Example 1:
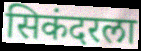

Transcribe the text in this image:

सिकंदरला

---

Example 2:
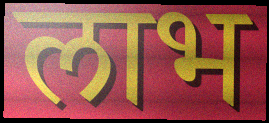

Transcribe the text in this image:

लाभ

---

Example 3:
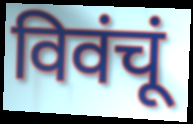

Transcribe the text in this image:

विवंचूं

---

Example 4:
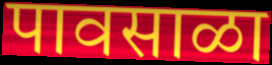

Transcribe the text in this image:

पावसाळा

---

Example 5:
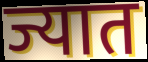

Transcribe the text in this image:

ज्यात